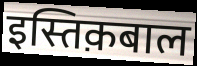
इस्तिक़बाल